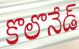
కొలొనేడ్